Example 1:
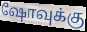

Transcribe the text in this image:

ஷோவுக்கு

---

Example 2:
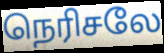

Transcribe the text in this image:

நெரிசலே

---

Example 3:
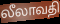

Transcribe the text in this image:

லீலாவதி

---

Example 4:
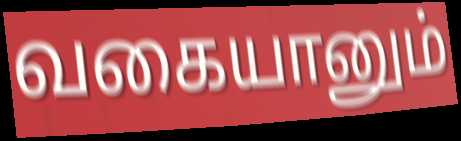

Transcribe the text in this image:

வகையானும்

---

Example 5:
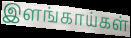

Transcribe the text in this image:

இளங்காய்கள்